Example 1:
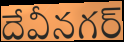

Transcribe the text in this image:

దేవీనగర్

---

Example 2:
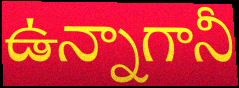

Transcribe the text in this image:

ఉన్నాగానీ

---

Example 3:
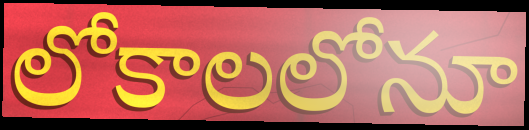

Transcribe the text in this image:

లోకాలలోనూ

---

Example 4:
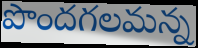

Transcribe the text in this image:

పొందగలమన్న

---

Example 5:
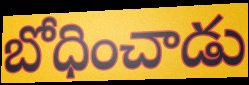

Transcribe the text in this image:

బోధించాడు